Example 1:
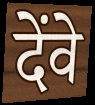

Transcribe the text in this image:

देंवे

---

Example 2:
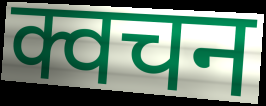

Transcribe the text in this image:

क्वचन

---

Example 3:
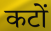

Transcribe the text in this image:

कटों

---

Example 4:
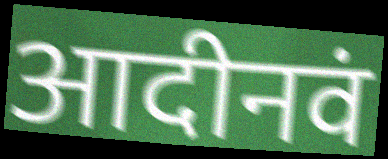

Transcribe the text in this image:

आदीनवं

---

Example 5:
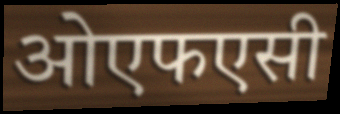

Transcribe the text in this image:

ओएफएसी